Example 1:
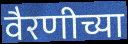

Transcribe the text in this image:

वैरणीच्या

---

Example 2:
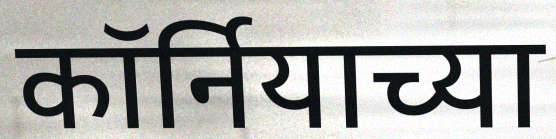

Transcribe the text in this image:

कॉर्नियाच्या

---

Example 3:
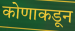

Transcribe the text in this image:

कोणाकडून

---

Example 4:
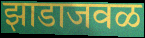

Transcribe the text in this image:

झाडाजवळ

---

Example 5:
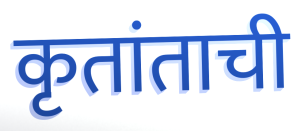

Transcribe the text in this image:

कृतांताची